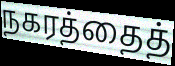
நகரத்தைத்